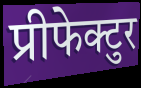
प्रीफेक्टुर